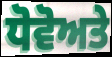
ਧੋਵੋਅਤੇ